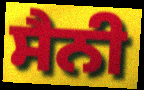
ਸੈਨੀ